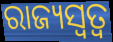
ରାଜ୍ୟସ୍ଵତ୍ଵ